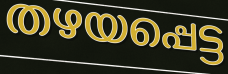
തഴയപ്പെട്ട